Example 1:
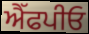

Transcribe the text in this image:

ਐੱਫਪੀਓ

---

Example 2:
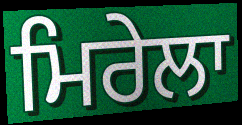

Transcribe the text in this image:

ਮਿਰੇਲਾ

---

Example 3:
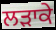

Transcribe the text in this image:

ਲੜਾਕੇ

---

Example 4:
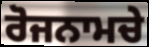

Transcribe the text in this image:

ਰੋਜਨਾਮਚੇ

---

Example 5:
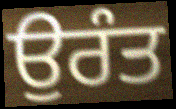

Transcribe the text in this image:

ਉਰੰਤ